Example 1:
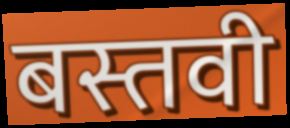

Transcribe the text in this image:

बस्तवी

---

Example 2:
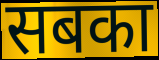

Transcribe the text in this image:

सबका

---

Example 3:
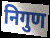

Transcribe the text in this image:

निगुण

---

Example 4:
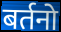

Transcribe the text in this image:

बर्तनो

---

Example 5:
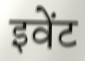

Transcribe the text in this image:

इवेंट